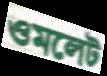
ওমলেট